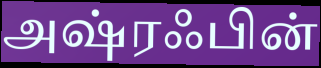
அஷ்ரஃபின்